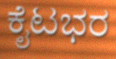
ಕೈಟಭರ